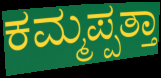
ಕಮ್ಮಪ್ಪತ್ತಾ